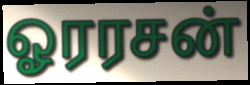
ஓரரசன்